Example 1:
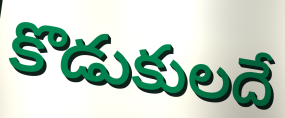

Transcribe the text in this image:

కొడుకులదే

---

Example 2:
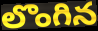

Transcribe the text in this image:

లొంగిన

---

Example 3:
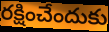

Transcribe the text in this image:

రక్షించేందుకు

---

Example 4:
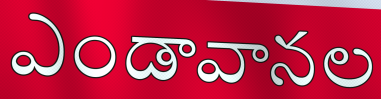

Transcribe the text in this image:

ఎండావానల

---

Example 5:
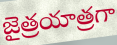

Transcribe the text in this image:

జైత్రయాత్రగా